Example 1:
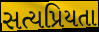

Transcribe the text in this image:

સત્યપ્રિયતા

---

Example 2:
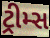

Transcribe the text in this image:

ટ્રીમ્સ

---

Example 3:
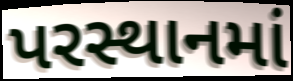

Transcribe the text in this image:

પરસ્થાનમાં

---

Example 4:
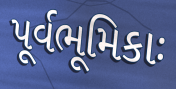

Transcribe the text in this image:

પૂર્વભૂમિકાઃ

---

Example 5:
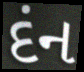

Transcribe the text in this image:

દંન